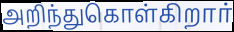
அறிந்துகொள்கிறார்